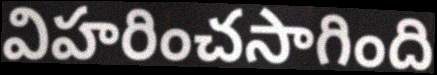
విహరించసాగింది